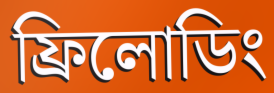
ফ্রিলোডিং